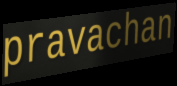
pravachan